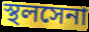
স্থলসেনা